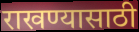
राखण्यासाठी